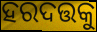
ହରଦତ୍ତକୁ